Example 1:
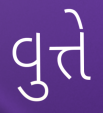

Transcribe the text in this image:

વુત્તે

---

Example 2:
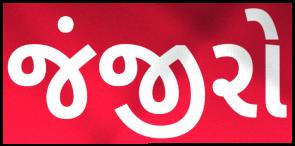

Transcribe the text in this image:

જંજીરો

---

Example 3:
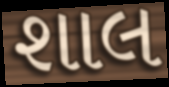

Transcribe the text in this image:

શાલ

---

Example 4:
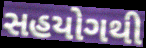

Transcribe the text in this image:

સહયોગથી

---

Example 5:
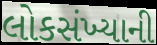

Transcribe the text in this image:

લોકસંખ્યાની